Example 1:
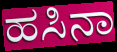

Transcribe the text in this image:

ಹಸಿನಾ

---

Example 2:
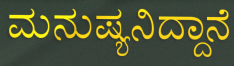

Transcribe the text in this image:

ಮನುಷ್ಯನಿದ್ದಾನೆ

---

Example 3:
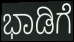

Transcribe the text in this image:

ಭಾಡಿಗೆ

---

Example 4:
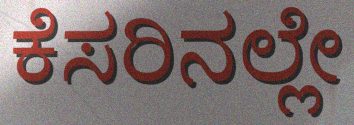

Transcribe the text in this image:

ಕೆಸರಿನಲ್ಲೇ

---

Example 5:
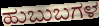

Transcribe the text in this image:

ಹುಬುಬಗಳ